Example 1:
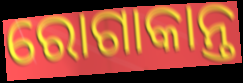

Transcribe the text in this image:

ରୋଗାକାନ୍ତ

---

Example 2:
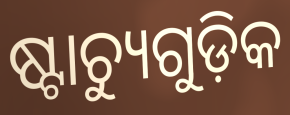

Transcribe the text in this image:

ଷ୍ଟାଚ୍ୟୁଗୁଡ଼ିକ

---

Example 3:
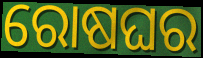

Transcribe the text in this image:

ରୋଷଘର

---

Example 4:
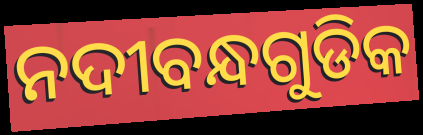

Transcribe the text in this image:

ନଦୀବନ୍ଧଗୁଡିକ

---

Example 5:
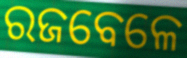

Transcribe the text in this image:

ରଜବେଳେ